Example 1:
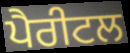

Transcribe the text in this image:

ਪੈਰੀਟਲ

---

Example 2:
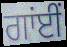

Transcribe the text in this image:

ਗਾਂਈਂ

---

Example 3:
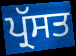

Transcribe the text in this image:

ਪ੍ਰੱਸਤ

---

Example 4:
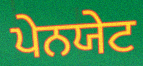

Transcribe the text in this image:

ਪੇਨਯੇਟ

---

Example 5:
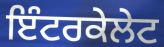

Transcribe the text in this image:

ਇੰਟਰਕੇਲੇਟ